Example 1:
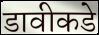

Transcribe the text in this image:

डावीकडे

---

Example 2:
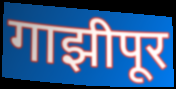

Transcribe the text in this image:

गाझीपूर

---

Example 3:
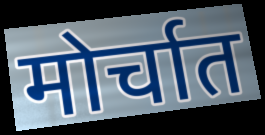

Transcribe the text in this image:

मोर्चात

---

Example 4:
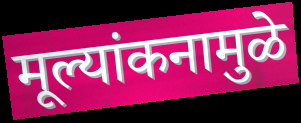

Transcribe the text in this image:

मूल्यांकनामुळे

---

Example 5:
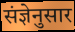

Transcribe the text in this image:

संज्ञेनुसार